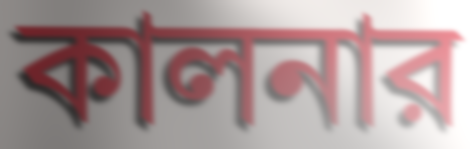
কালনার